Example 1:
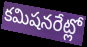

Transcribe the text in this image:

కమిషనరేట్లో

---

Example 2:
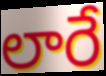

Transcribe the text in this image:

లారే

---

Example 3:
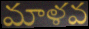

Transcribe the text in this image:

మాళవ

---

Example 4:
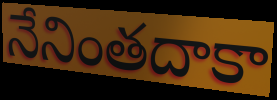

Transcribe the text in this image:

నేనింతదాకా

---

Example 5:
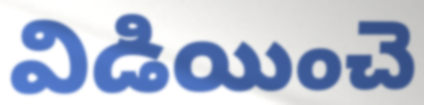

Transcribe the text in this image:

విడియించె